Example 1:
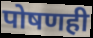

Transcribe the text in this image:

पोषणही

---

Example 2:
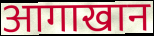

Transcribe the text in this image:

आगाखान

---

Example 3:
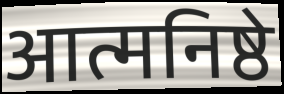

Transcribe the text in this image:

आत्मनिष्ठे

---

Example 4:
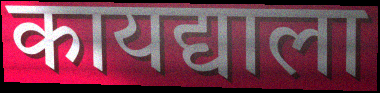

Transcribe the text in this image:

कायद्याला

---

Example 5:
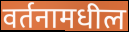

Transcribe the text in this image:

वर्तनामधील